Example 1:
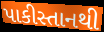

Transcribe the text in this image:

પાકીસ્તાનથી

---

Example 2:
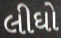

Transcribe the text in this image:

લીઘો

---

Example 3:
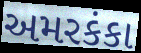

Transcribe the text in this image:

અમરકંકા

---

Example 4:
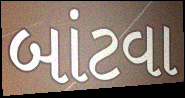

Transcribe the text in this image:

બાંટવા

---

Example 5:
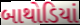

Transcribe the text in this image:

બાથોડિયાં